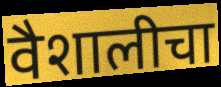
वैशालीचा